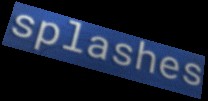
splashes